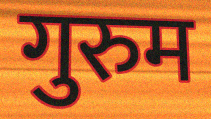
गुरुम